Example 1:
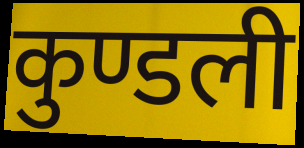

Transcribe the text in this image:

कुण्डली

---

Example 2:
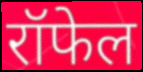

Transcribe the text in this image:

रॉफेल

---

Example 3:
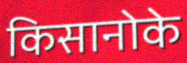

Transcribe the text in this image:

किसानोके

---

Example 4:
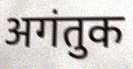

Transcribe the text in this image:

अगंतुक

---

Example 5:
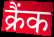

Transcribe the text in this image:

क्रैंक